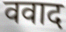
ववाद